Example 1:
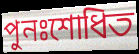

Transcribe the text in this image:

পুনঃশোধিত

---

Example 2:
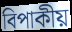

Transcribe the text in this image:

বিপাকীয়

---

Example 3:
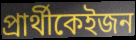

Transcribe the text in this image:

প্ৰাৰ্থীকেইজন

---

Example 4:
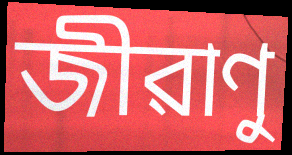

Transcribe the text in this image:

জীৱাণু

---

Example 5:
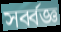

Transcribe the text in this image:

সৰ্ব্বজ্ঞ